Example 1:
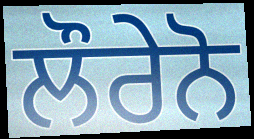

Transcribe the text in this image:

ਲੌਰੇਨੋ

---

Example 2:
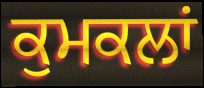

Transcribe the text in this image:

ਕੁਮਕਲਾਂ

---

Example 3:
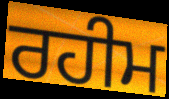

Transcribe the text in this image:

ਰਹੀਮ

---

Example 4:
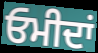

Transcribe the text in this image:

ਓਮੀਦਾਂ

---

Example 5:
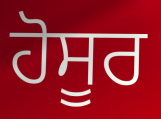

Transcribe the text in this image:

ਹੋਸੂਰ